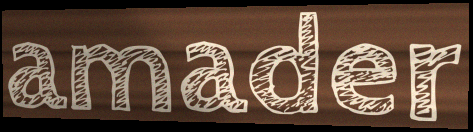
amader